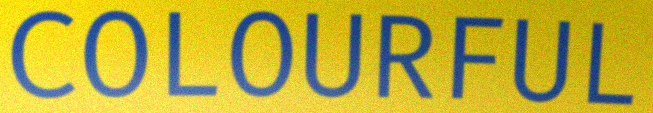
COLOURFUL